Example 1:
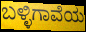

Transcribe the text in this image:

ಬಳ್ಳಿಗಾವೆಯ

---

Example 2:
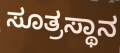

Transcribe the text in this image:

ಸೂತ್ರಸ್ಥಾನ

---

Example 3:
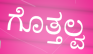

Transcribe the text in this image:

ಗೊತ್ತಲ್ವ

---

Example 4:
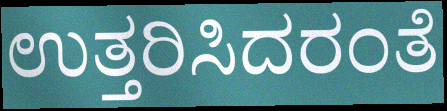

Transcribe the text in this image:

ಉತ್ತರಿಸಿದರಂತೆ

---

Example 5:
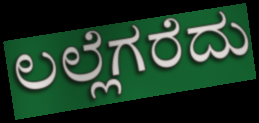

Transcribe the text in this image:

ಲಲ್ಲೆಗರೆದು